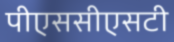
पीएससीएसटी